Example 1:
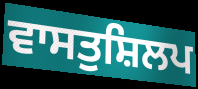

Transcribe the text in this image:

ਵਾਸਤੁਸ਼ਿਲਪ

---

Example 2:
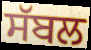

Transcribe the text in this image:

ਸੱਬਲ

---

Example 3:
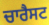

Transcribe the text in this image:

ਚਾਰੈਸਟ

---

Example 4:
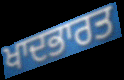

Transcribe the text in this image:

ਖਾਦਭਾਰਤ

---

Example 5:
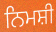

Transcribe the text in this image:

ਨਿਮਸ਼ੀ